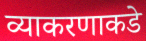
व्याकरणाकडे